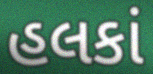
હલકાં